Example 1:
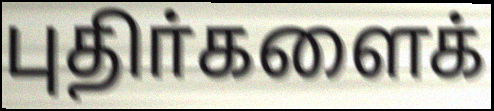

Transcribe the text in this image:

புதிர்களைக்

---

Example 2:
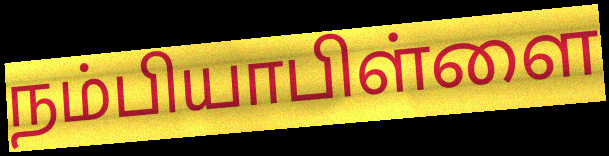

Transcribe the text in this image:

நம்பியாபிள்ளை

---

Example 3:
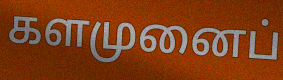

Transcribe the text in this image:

களமுனைப்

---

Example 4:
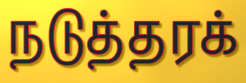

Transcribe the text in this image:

நடுத்தரக்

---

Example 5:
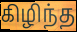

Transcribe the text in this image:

கிழிந்த